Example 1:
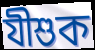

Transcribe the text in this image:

যীশুক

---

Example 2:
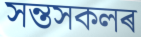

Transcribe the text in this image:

সন্তসকলৰ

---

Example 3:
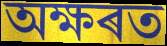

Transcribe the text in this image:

অক্ষৰত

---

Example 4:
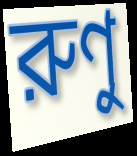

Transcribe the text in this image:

ৰুণু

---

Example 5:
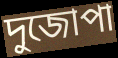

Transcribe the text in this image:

দুজোপা